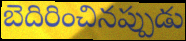
బెదిరించినప్పుడు